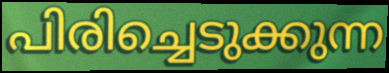
പിരിച്ചെടുക്കുന്ന